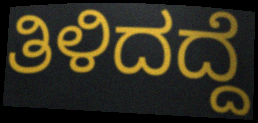
ತಿಳಿದದ್ದೆ